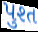
પુશ્ત